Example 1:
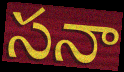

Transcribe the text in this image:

సనా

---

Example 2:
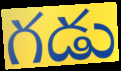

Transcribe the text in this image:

గడు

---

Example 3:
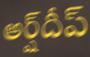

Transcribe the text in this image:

అర్ష్‌దీప్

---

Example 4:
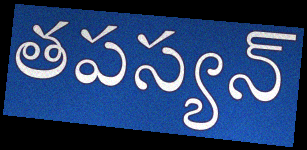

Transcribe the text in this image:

తపస్యన్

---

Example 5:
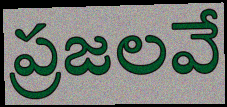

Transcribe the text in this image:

ప్రజలవే